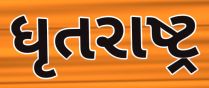
ધૃતરાષ્ટ્ર